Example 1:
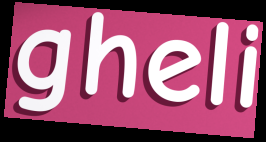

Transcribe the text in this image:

gheli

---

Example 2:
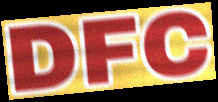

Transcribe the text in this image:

DFC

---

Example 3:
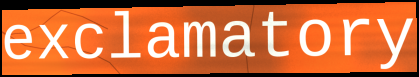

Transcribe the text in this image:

exclamatory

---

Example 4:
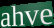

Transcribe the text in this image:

ahve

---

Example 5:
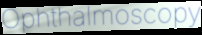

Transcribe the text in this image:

Ophthalmoscopy